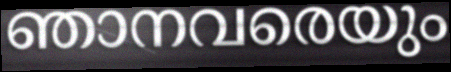
ഞാനവരെയും